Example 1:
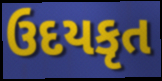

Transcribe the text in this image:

ઉદયકૃત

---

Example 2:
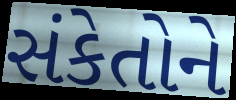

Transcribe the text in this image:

સંકેતોને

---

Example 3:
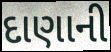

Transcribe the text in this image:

દાણાની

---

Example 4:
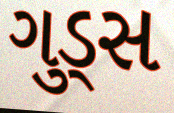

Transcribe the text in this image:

ગુડ્સ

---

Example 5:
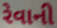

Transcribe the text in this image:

રેવાની